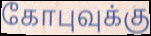
கோபுவுக்கு